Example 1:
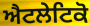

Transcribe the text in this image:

ਐਟਲੇਟਿਕੋ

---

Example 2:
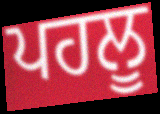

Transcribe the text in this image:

ਪਹਲੂ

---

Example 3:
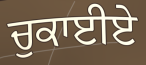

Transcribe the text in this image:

ਚੁਕਾਈਏ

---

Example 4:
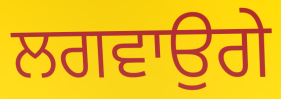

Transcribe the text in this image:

ਲਗਵਾਉਗੇ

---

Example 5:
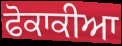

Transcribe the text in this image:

ਫੋਕਾਕੀਆ